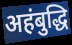
अहंबुद्धि